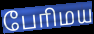
பேரிமய